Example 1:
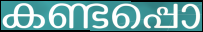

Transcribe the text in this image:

കണ്ടപ്പൊ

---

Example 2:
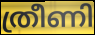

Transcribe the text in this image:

ത്രീണി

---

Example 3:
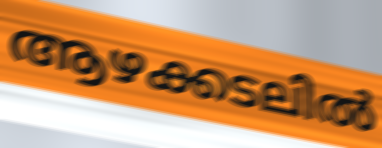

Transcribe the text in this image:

ആഴക്കടലിൽ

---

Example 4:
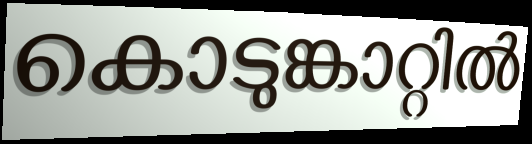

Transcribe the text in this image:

കൊടുങ്കാറ്റിൽ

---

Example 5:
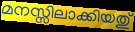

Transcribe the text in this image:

മനസ്സിലാക്കിയതു്